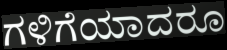
ಗಳಿಗೆಯಾದರೂ